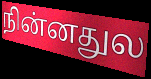
நின்னதுல